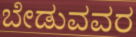
ಬೇಡುವವರ